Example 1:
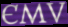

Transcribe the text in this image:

EMV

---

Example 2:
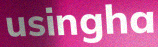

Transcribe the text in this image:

usingha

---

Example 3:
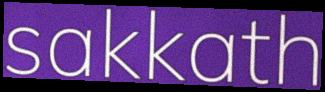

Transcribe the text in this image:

sakkath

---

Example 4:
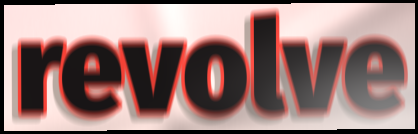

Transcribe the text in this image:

revolve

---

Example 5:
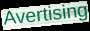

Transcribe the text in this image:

Avertising